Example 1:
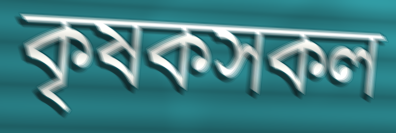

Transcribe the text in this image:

কৃষকসকল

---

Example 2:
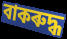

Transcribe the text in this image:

বাকৰুদ্ধ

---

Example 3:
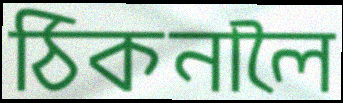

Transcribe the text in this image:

ঠিকনালৈ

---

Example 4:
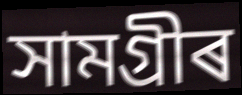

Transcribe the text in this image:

সামগ্ৰীৰ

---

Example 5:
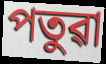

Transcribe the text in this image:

পতুৱা